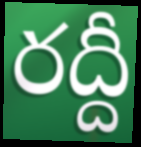
రద్దీ